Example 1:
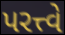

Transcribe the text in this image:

પરત્ત્વે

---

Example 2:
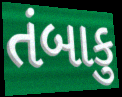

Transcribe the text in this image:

તંબાકુ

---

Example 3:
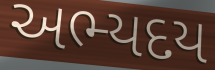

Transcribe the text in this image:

અભ્યદય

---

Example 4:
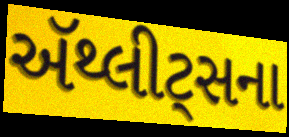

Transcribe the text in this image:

ઍથ્લીટ્સના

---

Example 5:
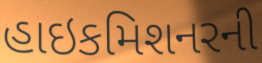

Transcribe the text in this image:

હાઇકમિશનરની